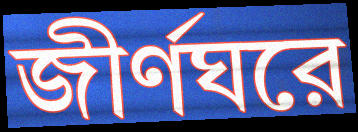
জীর্ণঘরে